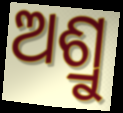
ଅଶ୍ରୁ